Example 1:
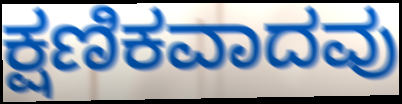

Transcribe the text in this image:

ಕ್ಷಣಿಕವಾದವು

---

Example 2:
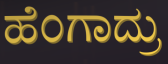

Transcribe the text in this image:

ಹೆಂಗಾದ್ರು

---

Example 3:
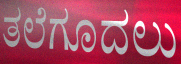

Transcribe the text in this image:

ತಲೆಗೂದಲು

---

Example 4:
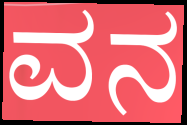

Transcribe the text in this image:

ವನ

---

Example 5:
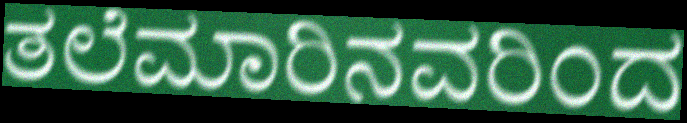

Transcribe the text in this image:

ತಲೆಮಾರಿನವರಿಂದ